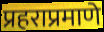
प्रहराप्रमाणे